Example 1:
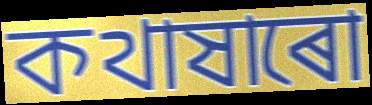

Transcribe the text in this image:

কথাষাৰো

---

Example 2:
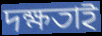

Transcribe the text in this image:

দক্ষতাই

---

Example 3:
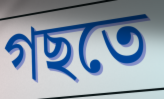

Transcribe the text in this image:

গছতে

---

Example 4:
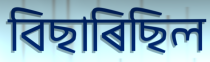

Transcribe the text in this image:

বিছাৰিছিল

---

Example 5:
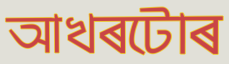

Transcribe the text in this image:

আখৰটোৰ